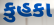
કુહકા